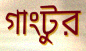
গাংটুর